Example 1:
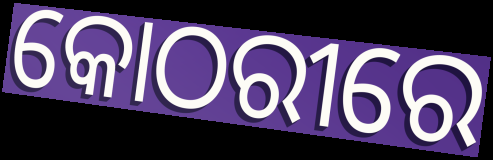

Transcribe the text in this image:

କୋଠରୀରେ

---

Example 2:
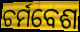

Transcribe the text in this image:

ଚର୍ମବେଶ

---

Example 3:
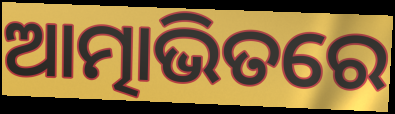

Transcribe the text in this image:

ଆତ୍ମାଭିତରେ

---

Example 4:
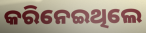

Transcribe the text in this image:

କରିନେଇଥିଲେ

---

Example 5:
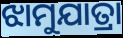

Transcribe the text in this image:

ଝାମୁଯାତ୍ରା